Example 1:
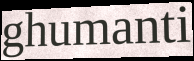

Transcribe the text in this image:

ghumanti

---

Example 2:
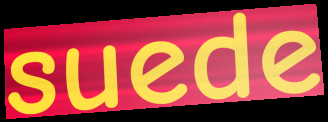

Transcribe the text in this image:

suede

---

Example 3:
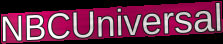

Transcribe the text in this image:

NBCUniversal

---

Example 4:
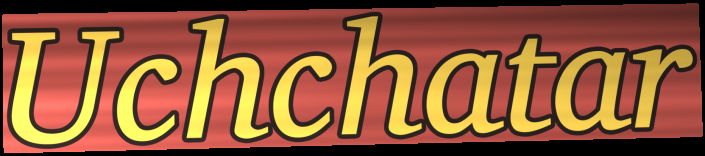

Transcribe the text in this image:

Uchchatar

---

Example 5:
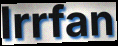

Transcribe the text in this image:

Irrfan